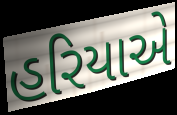
હરિયાએ